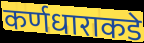
कर्णधाराकडे